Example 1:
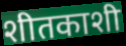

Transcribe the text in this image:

शीतकाशी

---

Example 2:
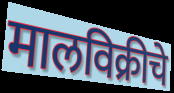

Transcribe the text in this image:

मालविक्रीचे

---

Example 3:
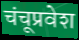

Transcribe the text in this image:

चंचूप्रवेश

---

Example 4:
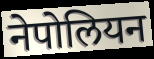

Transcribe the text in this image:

नेपोलियन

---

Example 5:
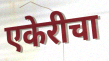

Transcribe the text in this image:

एकेरीचा